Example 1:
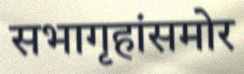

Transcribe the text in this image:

सभागृहांसमोर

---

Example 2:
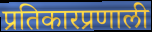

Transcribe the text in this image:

प्रतिकारप्रणाली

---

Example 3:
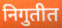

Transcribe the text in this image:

निगुतीत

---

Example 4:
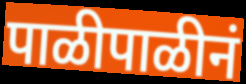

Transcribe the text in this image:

पाळीपाळीनं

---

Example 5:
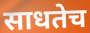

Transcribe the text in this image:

साधतेच